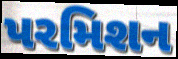
પરમિશન